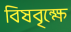
বিষবৃক্ষে